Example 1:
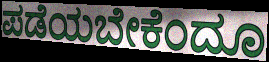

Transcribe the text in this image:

ಪಡೆಯಬೇಕೆಂದೂ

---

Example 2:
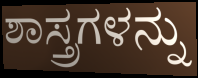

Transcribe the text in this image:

ಶಾಸ್ತ್ರಗಳನ್ನು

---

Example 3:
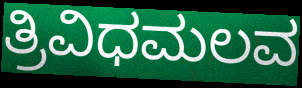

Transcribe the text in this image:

ತ್ರಿವಿಧಮಲವ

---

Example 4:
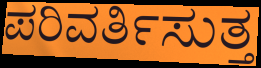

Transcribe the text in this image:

ಪರಿವರ್ತಿಸುತ್ತ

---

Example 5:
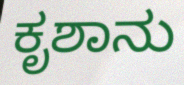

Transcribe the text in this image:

ಕೃಶಾನು